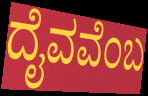
ದೈವವೆಂಬ